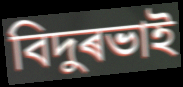
বিদুৰভাই